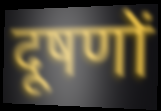
दूषणों